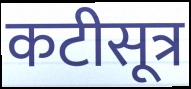
कटीसूत्र